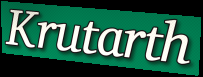
Krutarth